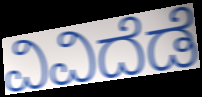
ವಿವಿದೆಡೆ